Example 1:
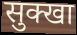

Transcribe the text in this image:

सुक्खा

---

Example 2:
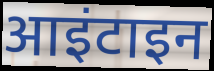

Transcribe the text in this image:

आइंटाइन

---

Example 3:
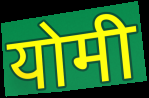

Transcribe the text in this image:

योमी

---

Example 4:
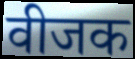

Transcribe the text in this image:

वीजक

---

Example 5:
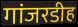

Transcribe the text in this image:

गांजरडीह